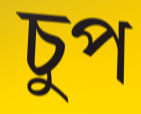
চুপ